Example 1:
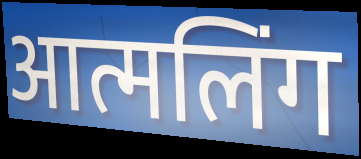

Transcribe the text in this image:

आत्मलिंग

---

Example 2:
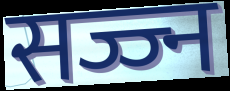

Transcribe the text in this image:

सज्ज्न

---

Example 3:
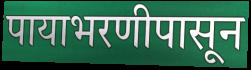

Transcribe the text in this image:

पायाभरणीपासून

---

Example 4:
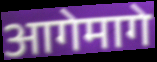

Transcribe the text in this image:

आगेमागे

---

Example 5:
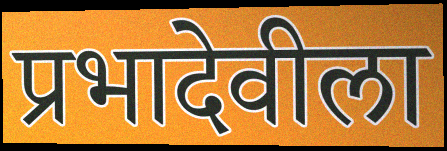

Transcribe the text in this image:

प्रभादेवीला